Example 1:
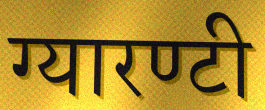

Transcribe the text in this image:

ग्यारण्टी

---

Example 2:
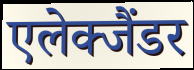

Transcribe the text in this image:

एलेक्जैंडर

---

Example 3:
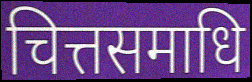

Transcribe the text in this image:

चित्तसमाधि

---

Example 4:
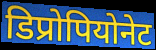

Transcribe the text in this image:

डिप्रोपियोनेट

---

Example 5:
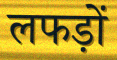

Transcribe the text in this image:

लफड़ों